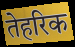
तेहरिक